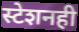
स्टेशनही